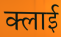
क्लाई